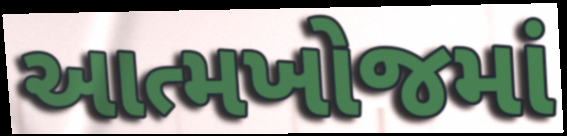
આત્મખોજમાં